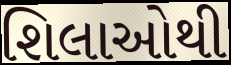
શિલાઓથી